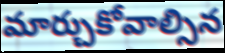
మార్చుకోవాల్సిన